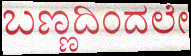
ಬಣ್ಣದಿಂದಲೇ